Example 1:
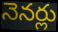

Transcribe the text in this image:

నెనర్లు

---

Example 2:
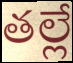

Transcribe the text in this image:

తల్లే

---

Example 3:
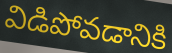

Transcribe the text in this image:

విడిపోవడానికి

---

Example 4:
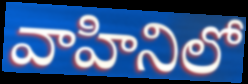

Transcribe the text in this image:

వాహినిలో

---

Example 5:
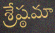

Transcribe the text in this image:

శ్రేష్ఠమా